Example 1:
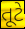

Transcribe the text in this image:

તૂટે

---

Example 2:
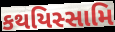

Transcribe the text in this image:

કથયિસ્સામિ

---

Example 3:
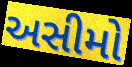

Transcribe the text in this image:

અસીમો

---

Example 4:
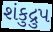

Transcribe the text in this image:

શંકુદ્રુપ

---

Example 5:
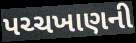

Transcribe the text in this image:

પચ્ચખાણની